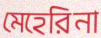
মেহেরিনা